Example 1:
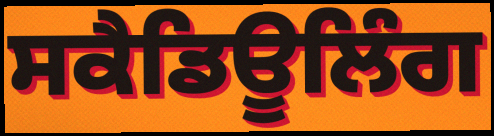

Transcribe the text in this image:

ਸਕੈਡਿਊਲਿੰਗ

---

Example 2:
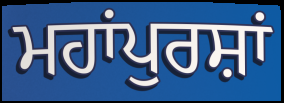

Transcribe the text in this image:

ਮਹਾਂਪੁਰਸ਼ਾਂ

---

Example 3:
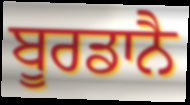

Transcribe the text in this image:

ਬੂਰਡਾਨੈ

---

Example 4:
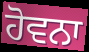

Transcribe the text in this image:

ਹੋਵਨਾ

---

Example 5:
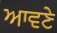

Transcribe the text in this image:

ਆਵਣੇ